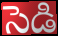
సెడి